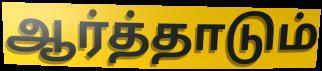
ஆர்த்தாடும்